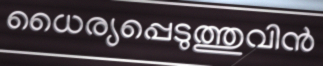
ധൈര്യപ്പെടുത്തുവിൻ